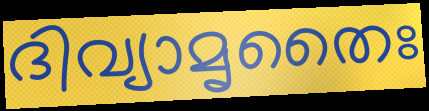
ദിവ്യാമൃതൈഃ